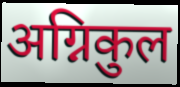
अग्निकुल